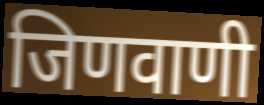
जिणवाणी